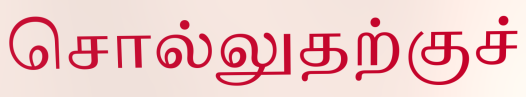
சொல்லுதற்குச்